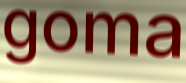
goma